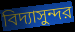
বিদ্যাসুন্দর